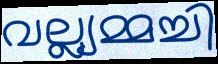
വല്ല്യമ്മച്ചി